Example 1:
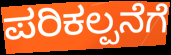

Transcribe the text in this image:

ಪರಿಕಲ್ಪನೆಗೆ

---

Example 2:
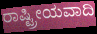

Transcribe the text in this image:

ರಾಷ್ಟ್ರೀಯವಾದಿ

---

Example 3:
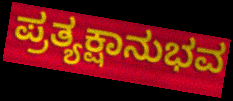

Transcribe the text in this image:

ಪ್ರತ್ಯಕ್ಷಾನುಭವ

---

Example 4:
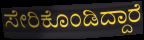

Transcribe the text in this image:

ಸೇರಿಕೊಂಡಿದ್ದಾರೆ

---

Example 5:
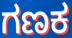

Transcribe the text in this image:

ಗಣಕ